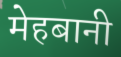
मेहबानी